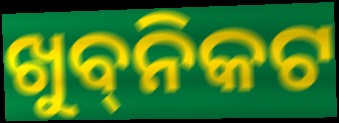
ଖୁବ୍‌ନିକଟ